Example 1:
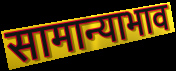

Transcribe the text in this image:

सामान्याभाव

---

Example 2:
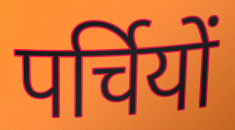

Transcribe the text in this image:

पर्चियों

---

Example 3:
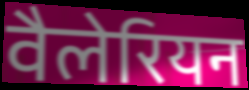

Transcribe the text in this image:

वैलेरियन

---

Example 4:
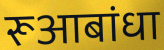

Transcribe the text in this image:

रूआबांधा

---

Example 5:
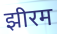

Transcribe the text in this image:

झीरम